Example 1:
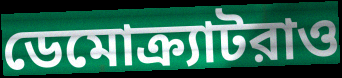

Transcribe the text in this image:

ডেমোক্র্যাটরাও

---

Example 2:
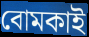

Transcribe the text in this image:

বোমকাই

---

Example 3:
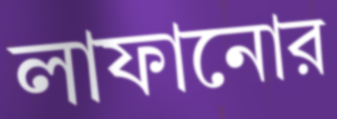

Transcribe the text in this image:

লাফানোর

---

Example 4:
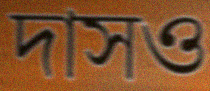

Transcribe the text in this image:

দাসও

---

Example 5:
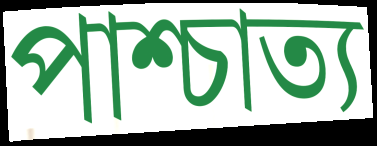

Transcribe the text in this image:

পাশ্চাত্য